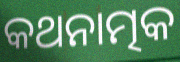
କଥନାତ୍ମକ